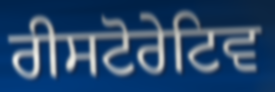
ਰੀਸਟੋਰੇਟਿਵ